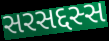
સરસદ્દસ્સ